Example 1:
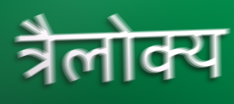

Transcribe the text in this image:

त्रैलोक्य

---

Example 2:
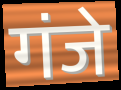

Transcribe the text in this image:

गंजे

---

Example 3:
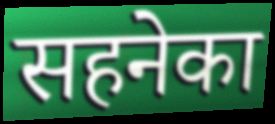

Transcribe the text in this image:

सहनेका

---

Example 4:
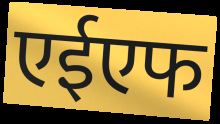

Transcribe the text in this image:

एईएफ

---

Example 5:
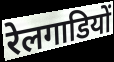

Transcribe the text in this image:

रेलगाडियों